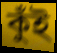
কুঁই